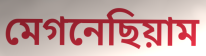
মেগনেছিয়াম